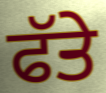
ਫੱਤੇ